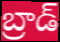
బ్రాడ్